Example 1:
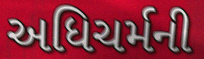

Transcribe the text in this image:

અધિચર્મની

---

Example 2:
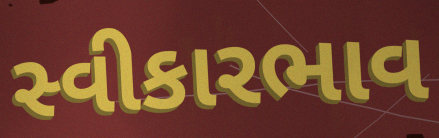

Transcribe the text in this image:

સ્વીકારભાવ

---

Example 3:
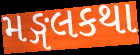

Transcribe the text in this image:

મઙ્ગલકથા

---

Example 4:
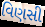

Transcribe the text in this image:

વિણસી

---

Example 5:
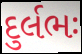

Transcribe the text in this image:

દુર્લભઃ